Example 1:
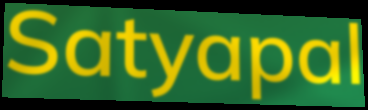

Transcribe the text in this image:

Satyapal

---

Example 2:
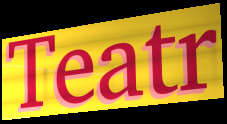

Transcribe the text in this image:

Teatr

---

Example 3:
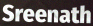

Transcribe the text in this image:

Sreenath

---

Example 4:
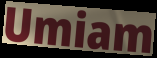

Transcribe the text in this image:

Umiam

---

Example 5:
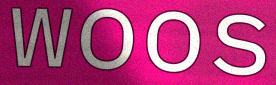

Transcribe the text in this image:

woos